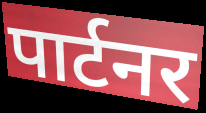
पार्टनर